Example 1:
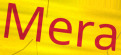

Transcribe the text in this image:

Mera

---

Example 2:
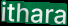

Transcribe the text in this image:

ithara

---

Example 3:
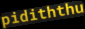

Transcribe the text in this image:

pidiththu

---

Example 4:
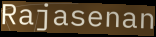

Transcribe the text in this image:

Rajasenan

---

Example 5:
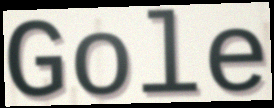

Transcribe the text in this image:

Gole